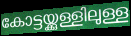
കോട്ടയ്ക്കുള്ളിലുള്ള